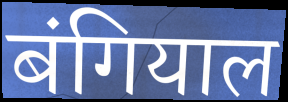
बंगियाल